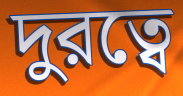
দুরত্বে